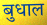
बुधाल